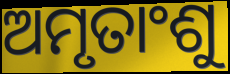
ଅମୃତାଂଶୁ